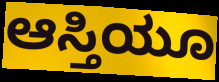
ಆಸ್ತಿಯೂ